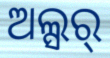
ଅଲ୍ସର୍